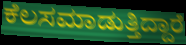
ಕೆಲಸಮಾಡುತ್ತಿದ್ದಾರೆ